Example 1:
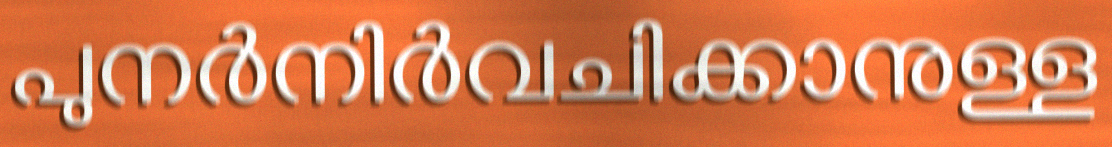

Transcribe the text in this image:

പുനർനിർവചിക്കാനുള്ള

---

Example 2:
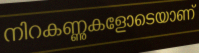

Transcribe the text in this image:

നിറകണ്ണുകളോടെയാണ്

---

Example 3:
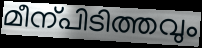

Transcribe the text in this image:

മീന്പിടിത്തവും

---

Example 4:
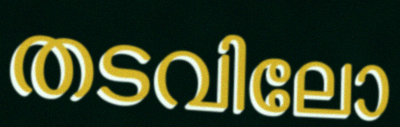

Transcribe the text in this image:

തടവിലോ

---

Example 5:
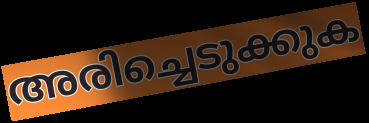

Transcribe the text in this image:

അരിച്ചെടുക്കുക